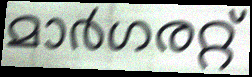
മാർഗരറ്റ്